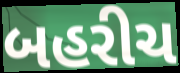
બહરીચ